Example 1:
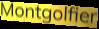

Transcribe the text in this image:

Montgolfier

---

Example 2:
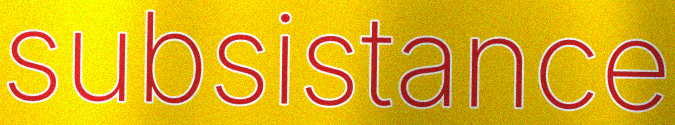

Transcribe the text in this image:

subsistance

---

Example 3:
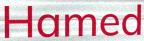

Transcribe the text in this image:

Hamed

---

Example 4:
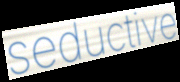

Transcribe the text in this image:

seductive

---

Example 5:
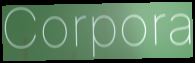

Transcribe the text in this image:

Corpora